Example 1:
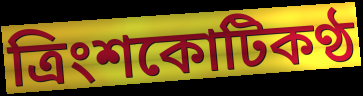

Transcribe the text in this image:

ত্রিংশকোটিকণ্ঠ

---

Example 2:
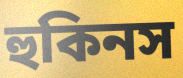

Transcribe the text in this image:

হুকিনস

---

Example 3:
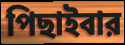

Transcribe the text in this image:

পিছাইবার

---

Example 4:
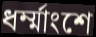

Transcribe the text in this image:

ধর্ম্মাংশে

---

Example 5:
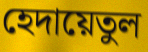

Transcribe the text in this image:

হেদায়েতুল